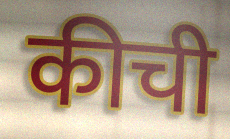
कीची